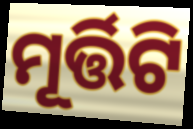
ମୂର୍ତ୍ତିଟି